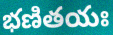
భణితయః